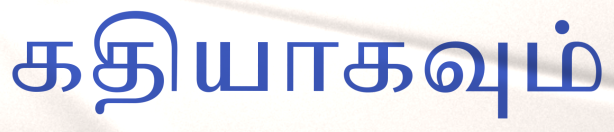
கதியாகவும்